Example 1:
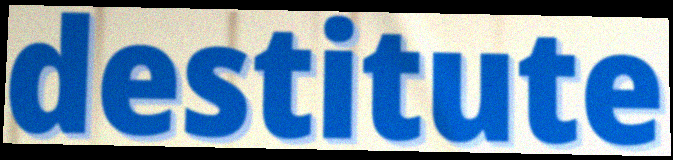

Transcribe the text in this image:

destitute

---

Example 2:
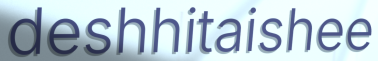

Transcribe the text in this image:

deshhitaishee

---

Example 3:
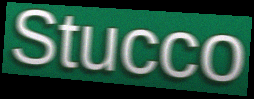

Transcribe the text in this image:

Stucco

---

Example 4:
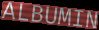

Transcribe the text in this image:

ALBUMIN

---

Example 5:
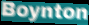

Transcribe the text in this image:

Boynton